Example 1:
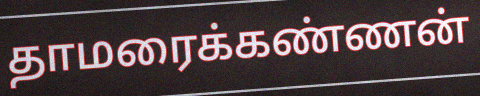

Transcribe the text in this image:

தாமரைக்கண்ணன்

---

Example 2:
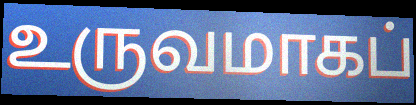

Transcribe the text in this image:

உருவமாகப்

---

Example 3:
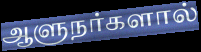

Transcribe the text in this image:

ஆளுநர்களால்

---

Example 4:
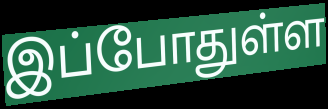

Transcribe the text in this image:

இப்போதுள்ள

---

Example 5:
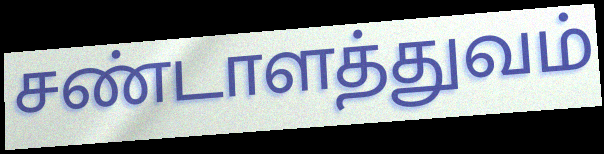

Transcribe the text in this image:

சண்டாளத்துவம்